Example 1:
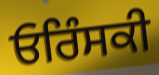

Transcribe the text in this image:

ਓਰਿੰਸਕੀ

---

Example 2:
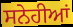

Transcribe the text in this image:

ਸਨੇਹੀਆਂ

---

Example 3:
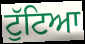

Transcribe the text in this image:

ਟੁੱਟਿਆ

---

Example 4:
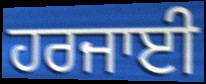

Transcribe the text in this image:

ਹਰਜਾਈ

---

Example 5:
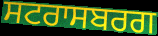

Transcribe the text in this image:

ਸਟਰਾਸਬਰਗ